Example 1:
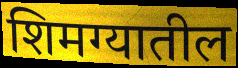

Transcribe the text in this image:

शिमग्यातील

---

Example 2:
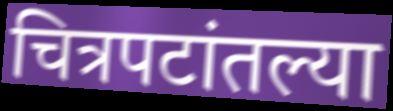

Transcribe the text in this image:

चित्रपटांतल्या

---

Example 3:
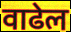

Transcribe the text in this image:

वाढेल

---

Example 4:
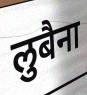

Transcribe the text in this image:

लुबैना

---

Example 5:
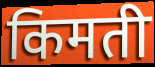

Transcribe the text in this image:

किमती